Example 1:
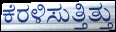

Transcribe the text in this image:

ಕೆರಳಿಸುತ್ತಿತ್ತು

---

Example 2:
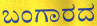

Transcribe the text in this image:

ಬಂಗಾರದ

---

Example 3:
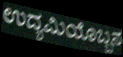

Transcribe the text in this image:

ಉದ್ಯಮಿಯೊಬ್ಬನ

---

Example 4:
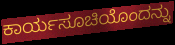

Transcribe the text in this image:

ಕಾರ್ಯಸೂಚಿಯೊಂದನ್ನು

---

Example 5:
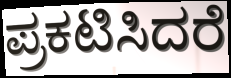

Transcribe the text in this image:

ಪ್ರಕಟಿಸಿದರೆ